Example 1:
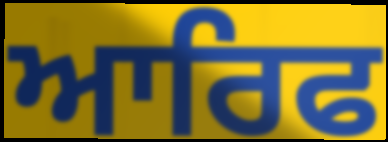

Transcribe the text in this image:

ਆਰਿਫ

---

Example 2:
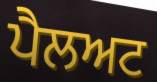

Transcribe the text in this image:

ਪੈਲਅਟ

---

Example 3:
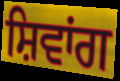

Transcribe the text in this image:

ਸ਼ਿਵਾਂਗ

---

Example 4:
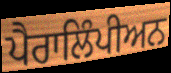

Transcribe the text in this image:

ਪੈਰਾਲਿੰਪੀਅਨ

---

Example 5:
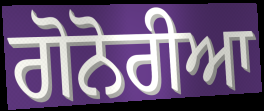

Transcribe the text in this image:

ਗੋਨੋਰੀਆ